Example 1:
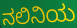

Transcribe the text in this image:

ನಲಿನಿಯ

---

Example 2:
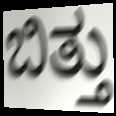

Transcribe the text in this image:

ಬಿತ್ತು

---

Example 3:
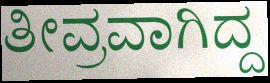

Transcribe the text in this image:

ತೀವ್ರವಾಗಿದ್ದ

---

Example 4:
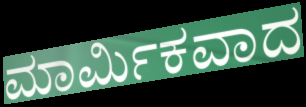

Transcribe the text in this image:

ಮಾರ್ಮಿಕವಾದ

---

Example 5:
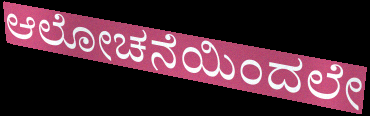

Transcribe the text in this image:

ಆಲೋಚನೆಯಿಂದಲೇ